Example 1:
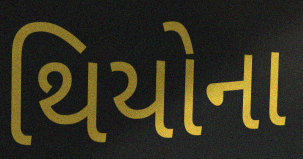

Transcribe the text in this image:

થિયોના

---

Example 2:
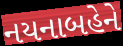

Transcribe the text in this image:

નયનાબહેને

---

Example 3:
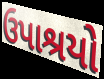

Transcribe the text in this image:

ઉપાશ્રયો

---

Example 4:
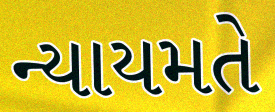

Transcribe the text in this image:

ન્યાયમતે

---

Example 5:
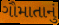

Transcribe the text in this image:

ગૌમાતાનું